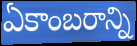
ఏకాంబరాన్ని